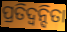
ପ୍ରତିଦ୍ୱନ୍ଦିତା